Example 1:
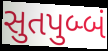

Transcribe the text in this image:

સુતપુબ્બં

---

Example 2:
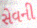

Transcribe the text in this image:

સેવની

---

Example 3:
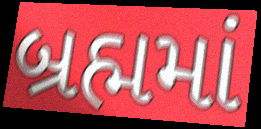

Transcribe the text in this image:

બ્રહ્મમાં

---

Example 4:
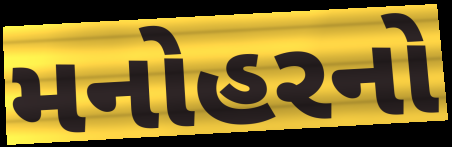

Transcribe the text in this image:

મનોહરનો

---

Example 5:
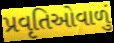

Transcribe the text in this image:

પ્રવૃતિઓવાળું